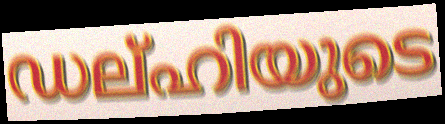
ഡല്ഹിയുടെ